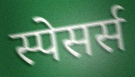
स्पेसर्स